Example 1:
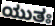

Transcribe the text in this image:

ಯುತಃ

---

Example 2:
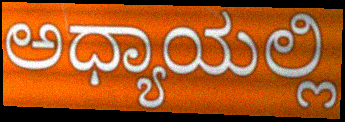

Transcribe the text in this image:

ಅಧ್ಯಾಯಲ್ಲಿ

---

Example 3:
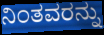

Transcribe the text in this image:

ನಿಂತವರನ್ನು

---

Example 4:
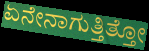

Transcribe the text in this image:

ಏನೇನಾಗುತ್ತಿತ್ತೋ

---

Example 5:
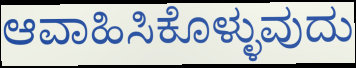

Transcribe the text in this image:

ಆವಾಹಿಸಿಕೊಳ್ಳುವುದು